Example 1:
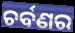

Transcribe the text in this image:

ଚର୍ବଣର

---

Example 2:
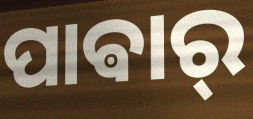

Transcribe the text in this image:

ପାଵାର୍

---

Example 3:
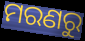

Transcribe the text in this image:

ମରଣରୁ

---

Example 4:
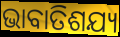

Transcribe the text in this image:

ଭାବାତିଶଯ୍ୟ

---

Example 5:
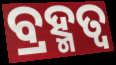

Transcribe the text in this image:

ବ୍ରହ୍ମତ୍ୱ